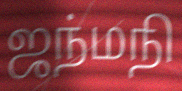
ஜந்மநி